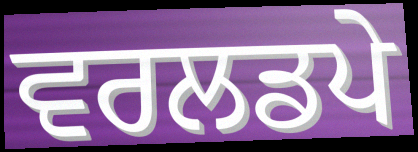
ਵਰਲਡਪੇ